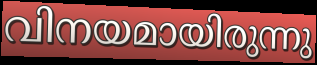
വിനയമായിരുന്നു